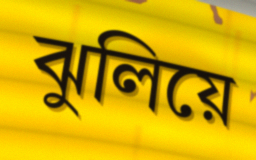
ঝুলিয়ে